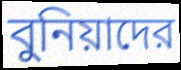
বুনিয়াদের